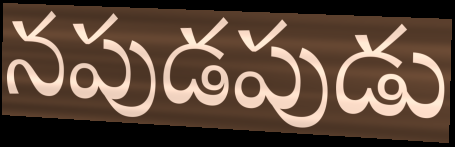
నపుడపుడు